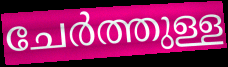
ചേർത്തുള്ള